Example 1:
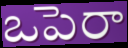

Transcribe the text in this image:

ఒపెరా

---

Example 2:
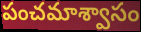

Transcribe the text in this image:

పంచమాశ్వాసం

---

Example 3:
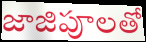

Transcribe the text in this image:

జాజిపూలతో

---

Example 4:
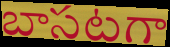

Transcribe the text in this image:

బాసటగా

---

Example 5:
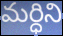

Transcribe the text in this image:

మర్ధిని